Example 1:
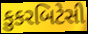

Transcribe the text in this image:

કુકરબિટેસી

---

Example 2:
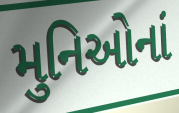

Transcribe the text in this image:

મુનિઓનાં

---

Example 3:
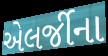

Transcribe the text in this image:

એલર્જીના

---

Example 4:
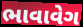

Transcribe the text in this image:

ભાવાવેગ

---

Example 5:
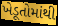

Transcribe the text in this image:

ખેડૂતોમાંથી